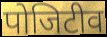
पोजिटीव